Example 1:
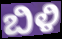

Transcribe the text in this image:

ಬಿಳಿ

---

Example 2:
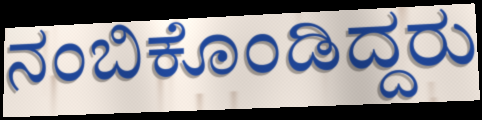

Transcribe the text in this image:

ನಂಬಿಕೊಂಡಿದ್ದರು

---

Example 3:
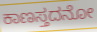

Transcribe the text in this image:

ಕಾಣಸ್ತದನೋ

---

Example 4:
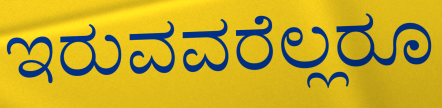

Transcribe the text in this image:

ಇರುವವರೆಲ್ಲರೂ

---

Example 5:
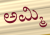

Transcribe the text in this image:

ಅಮ್ಮಿ